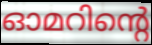
ഓമറിന്റെ